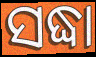
ସଦ୍ଧା